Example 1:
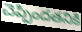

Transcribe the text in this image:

చెప్పిందతనికి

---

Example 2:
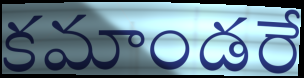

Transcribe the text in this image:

కమాండరే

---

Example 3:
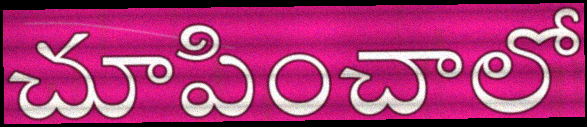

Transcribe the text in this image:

చూపించాలో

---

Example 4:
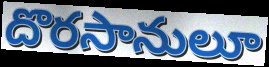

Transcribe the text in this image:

దొరసానులూ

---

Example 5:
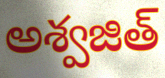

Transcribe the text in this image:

అశ్వజిత్